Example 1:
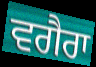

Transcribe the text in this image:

ਵਗੈਰਾ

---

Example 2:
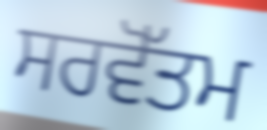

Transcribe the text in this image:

ਸਰਵੋੱਤਮ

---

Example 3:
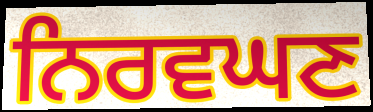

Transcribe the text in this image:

ਨਿਰਵਘਣ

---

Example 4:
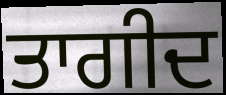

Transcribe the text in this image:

ਤਾਗੀਦ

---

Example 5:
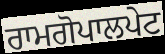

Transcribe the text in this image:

ਰਾਮਗੋਪਾਲਪੇਟ